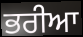
ਭਰੀਆ